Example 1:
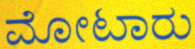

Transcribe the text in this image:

ಮೋಟಾರು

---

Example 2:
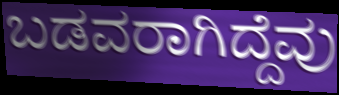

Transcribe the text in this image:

ಬಡವರಾಗಿದ್ದೆವು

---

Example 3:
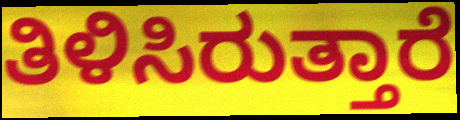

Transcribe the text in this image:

ತಿಳಿಸಿರುತ್ತಾರೆ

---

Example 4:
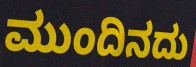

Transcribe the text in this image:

ಮುಂದಿನದು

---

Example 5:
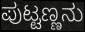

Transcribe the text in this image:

ಪುಟ್ಟಣ್ಣನು